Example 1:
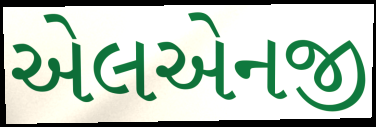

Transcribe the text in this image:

એલએનજી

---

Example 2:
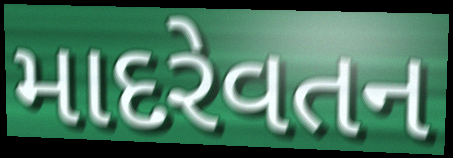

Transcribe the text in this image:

માદરેવતન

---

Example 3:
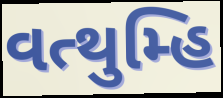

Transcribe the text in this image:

વત્થુમ્હિ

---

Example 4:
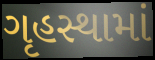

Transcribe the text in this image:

ગૃહસ્થામાં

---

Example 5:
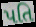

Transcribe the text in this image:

પતિ